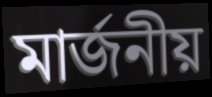
মার্জনীয়